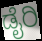
ಡೈರಿ